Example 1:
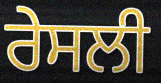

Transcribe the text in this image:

ਰੇਸਲੀ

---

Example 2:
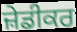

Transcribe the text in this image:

ਜ਼ੇਡੀਕਰ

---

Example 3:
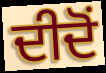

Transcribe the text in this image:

ਦੀਦੋਂ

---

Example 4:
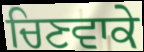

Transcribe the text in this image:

ਚਿਣਵਾਕੇ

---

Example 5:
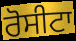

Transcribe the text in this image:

ਰੋਸੀਟਾ